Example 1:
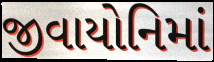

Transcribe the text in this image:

જીવાયોનિમાં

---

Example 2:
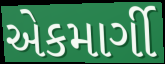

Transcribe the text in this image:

એકમાર્ગી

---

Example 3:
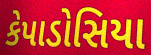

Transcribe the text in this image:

કેપાડોસિયા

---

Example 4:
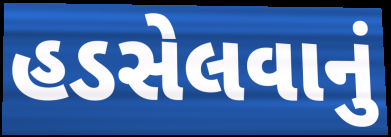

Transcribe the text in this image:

હડસેલવાનું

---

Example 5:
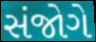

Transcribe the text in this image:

સંજોગે